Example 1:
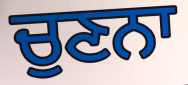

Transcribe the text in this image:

ਚੁਣਨਾ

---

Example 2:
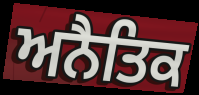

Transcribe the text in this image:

ਅਨੈਤਿਕ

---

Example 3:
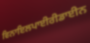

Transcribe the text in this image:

ਵਿਨਾਇਲਪਾਈਰੀਡਾਈਨ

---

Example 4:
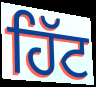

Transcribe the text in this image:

ਹਿੱਟ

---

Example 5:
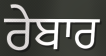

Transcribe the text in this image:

ਰੇਬਾਰ